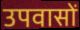
उपवासों